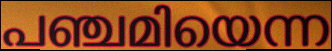
പഞ്ചമിയെന്ന